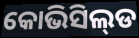
କୋଭିସିଲ୍‌ଡ